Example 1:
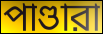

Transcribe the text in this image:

পাণ্ডারা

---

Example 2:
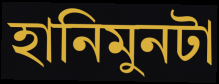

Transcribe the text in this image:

হানিমুনটা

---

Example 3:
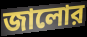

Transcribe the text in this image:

জালোর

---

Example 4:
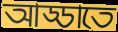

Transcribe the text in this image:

আড্ডাতে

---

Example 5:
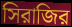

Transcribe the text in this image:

সিরাজির